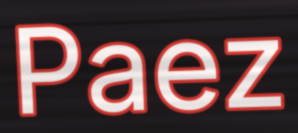
Paez